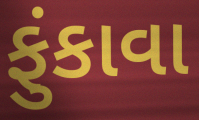
ફુંકાવા